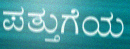
ಪತ್ತುಗೆಯ